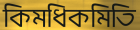
কিমধিকমিতি